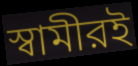
স্বামীরই